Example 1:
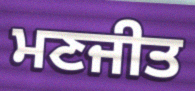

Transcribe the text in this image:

ਮਣਜੀਤ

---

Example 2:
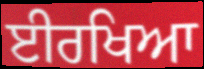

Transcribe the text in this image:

ਈਰਖਿਆ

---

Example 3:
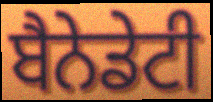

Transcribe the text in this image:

ਬੈਨੇਡੇਟੀ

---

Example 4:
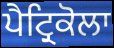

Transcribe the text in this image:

ਪੈਟ੍ਰਿਕੋਲਾ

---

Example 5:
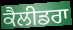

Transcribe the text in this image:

ਕੈਲੀਡਰਾ